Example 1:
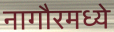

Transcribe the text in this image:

नागौरमध्ये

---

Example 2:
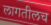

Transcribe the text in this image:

लागतीलच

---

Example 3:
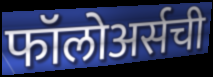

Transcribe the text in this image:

फॉलोअर्सची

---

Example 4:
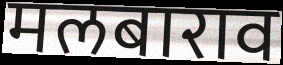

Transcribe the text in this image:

मलबाराव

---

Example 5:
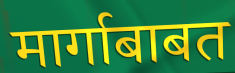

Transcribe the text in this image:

मार्गाबाबत